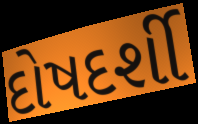
દોષદર્શી